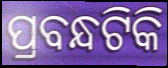
ପ୍ରବନ୍ଧଟିକି